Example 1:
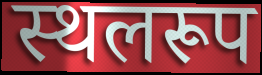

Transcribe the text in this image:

स्थलरूप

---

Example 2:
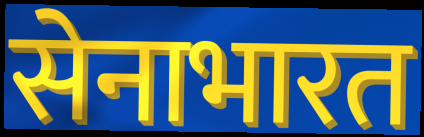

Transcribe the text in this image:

सेनाभारत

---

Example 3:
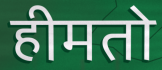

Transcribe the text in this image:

हीमतो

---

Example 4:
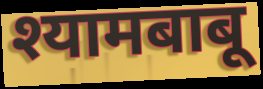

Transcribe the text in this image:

श्यामबाबू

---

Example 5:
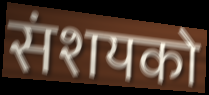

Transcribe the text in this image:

संशयको